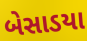
બેસાડયા